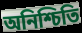
অনিশ্চিতি